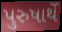
પુરુષાર્થે